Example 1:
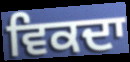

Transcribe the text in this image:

ਵਿਕਦਾ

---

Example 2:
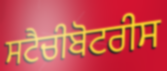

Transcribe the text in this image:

ਸਟੈਚੀਬੋਟਰੀਸ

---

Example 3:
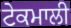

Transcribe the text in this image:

ਟੇਕਮਾਲੀ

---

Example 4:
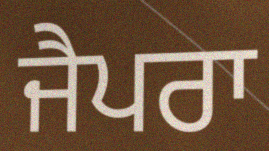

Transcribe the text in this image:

ਜੈਪਰਾ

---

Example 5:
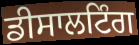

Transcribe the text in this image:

ਡੀਸਾਲਟਿੰਗ